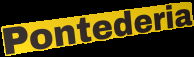
Pontederia